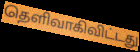
தெளிவாகிவிட்டது